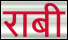
राबी